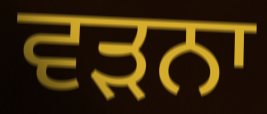
ਵੜਨਾ